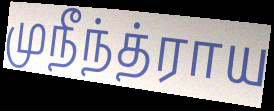
முநீந்த்ராய